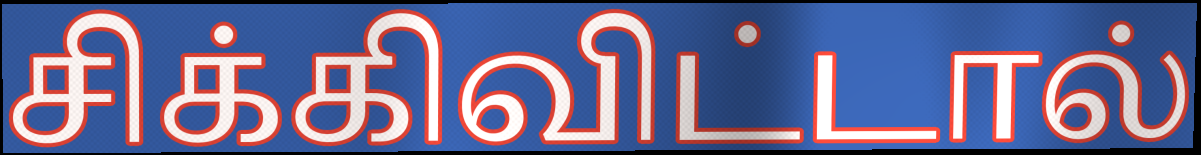
சிக்கிவிட்டால்